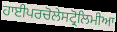
ਹਾਈਪਰਚੋਲੇਸਟ੍ਰੋਲਿਮੀਆ